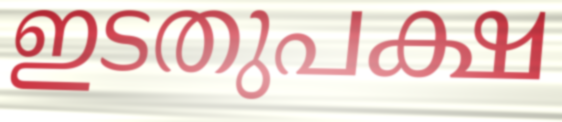
ഇടതുപക്ഷ